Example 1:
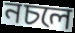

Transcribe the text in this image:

নচলে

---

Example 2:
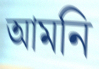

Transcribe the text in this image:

আমনি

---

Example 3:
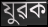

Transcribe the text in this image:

যুৱক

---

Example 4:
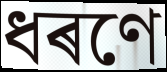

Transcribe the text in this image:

ধৰণে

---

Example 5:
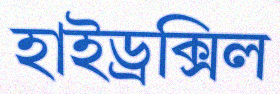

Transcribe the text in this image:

হাইড্ৰক্সিল